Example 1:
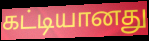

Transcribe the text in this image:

கட்டியானது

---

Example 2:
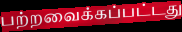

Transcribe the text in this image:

பற்றவைக்கப்பட்டது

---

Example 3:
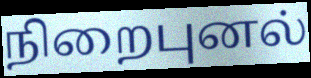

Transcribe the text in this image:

நிறைபுனல்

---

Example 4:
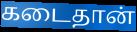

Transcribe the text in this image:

கடைதான்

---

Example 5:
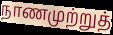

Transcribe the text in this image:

நாணமுற்றுத்